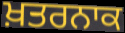
ਖ਼ਤਰਨਾਕ